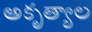
అకృత్యాల